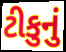
ટીકુનું